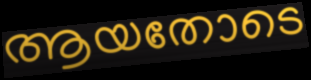
ആയതോടെ